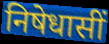
निषेधासीं